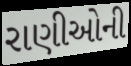
રાણીઓની